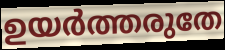
ഉയർത്തരുതേ